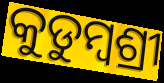
କୁଡୁମ୍ବଶ୍ରୀ